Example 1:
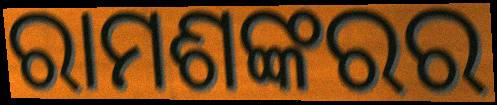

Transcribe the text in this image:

ରାମଶଙ୍କରର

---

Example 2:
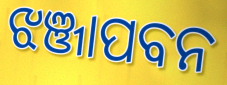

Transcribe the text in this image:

ଝଞ୍ଜାପବନ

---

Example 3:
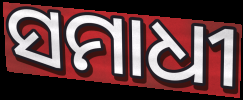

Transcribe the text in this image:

ସମାଧୀ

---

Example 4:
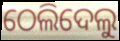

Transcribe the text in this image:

ଠେଲିଦେଲୁ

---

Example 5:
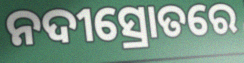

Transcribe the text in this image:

ନଦୀସ୍ରୋତରେ